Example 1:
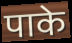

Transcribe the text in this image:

पाके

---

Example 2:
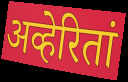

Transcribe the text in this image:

अव्हेरितां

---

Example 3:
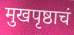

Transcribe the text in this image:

मुखपृष्ठाचं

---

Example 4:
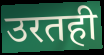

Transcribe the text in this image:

उरतही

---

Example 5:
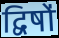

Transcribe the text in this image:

द्विषो॑